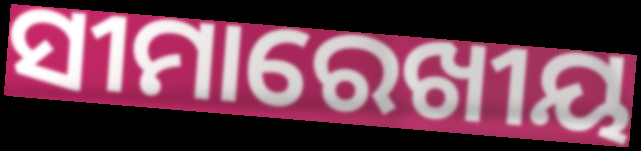
ସୀମାରେଖୀୟ